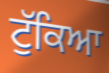
ਟੁੱਕਿਆ